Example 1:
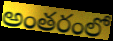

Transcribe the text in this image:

అంతరంలో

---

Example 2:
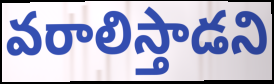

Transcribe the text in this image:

వరాలిస్తాడని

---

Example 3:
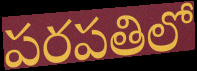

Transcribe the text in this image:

పరపతిలో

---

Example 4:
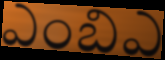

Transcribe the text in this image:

ఎంబిఎ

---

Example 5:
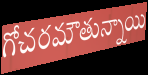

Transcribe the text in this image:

గోచరమౌతున్నాయి